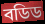
বডিড